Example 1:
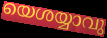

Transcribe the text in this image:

യെശയ്യാവു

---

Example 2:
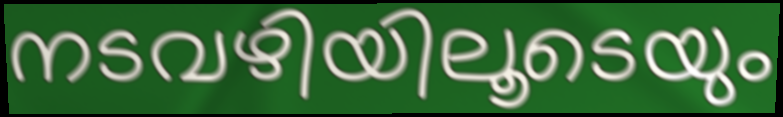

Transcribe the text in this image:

നടവഴിയിലൂടെയും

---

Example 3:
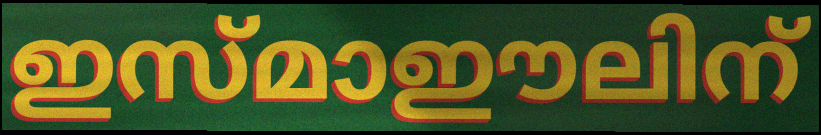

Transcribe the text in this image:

ഇസ്മാഈലിന്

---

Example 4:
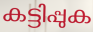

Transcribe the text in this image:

കട്ടിപ്പുക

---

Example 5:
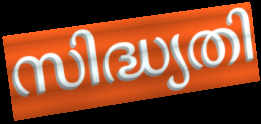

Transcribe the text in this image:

സിദ്ധ്യതി